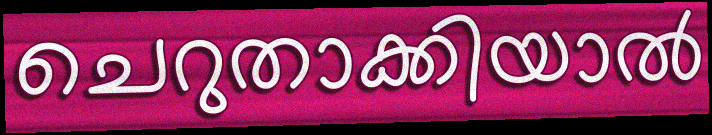
ചെറുതാക്കിയാൽ